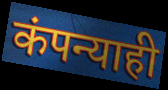
कंपन्याही